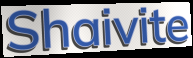
Shaivite